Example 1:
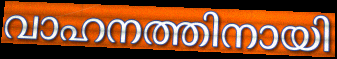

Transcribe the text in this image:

വാഹനത്തിനായി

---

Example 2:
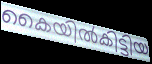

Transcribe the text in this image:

കൈയിൽകിട്ടിയ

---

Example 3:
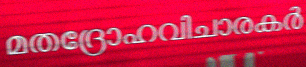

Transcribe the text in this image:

മതദ്രോഹവിചാരകർ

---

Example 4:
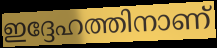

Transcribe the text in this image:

ഇദ്ദേഹത്തിനാണ്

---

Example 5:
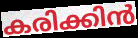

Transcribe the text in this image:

കരിക്കിൻ